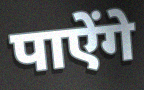
पाऐंगे